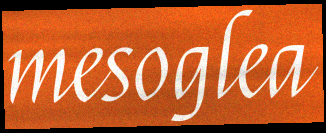
mesoglea